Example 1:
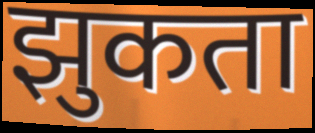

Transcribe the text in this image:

झुकता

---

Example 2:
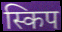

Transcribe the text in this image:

स्किप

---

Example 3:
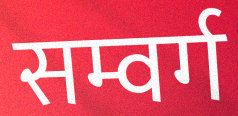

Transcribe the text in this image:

सम्वर्ग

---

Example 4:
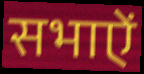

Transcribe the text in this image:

सभाऐं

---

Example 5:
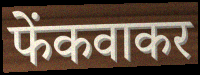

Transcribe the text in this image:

फेंकवाकर